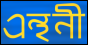
এন্থনী